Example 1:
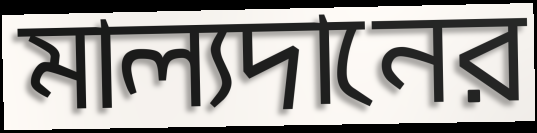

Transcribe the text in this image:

মাল্যদানের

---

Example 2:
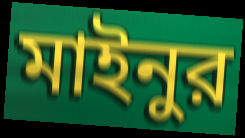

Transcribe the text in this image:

মাইনুর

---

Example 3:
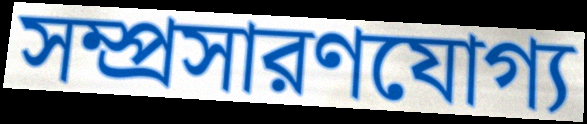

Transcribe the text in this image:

সম্প্রসারণযোগ্য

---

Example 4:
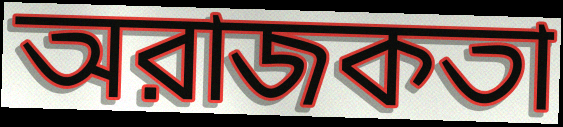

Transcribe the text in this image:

অরাজকতা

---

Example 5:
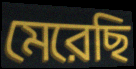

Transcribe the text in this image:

মেরেছি